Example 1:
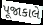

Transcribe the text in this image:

પૂજાકાલે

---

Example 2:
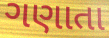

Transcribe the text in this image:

ગણાતા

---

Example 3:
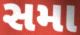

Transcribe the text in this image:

સમા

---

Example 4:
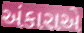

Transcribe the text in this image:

અંકારાએ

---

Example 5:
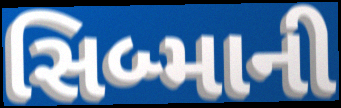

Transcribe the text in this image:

સિબ્માની